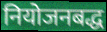
नियोजनबद्ध